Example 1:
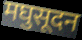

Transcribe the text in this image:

मघुसूदन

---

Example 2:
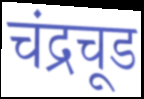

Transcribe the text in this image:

चंद्रचूड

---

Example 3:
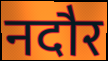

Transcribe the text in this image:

नदौर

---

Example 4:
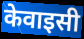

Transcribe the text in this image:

केवाइसी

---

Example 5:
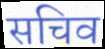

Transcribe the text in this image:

सचिव